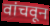
वांचवून